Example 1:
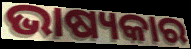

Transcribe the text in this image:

ଭାଷ୍ୟକାର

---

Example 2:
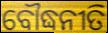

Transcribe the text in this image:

ବୌଦ୍ଧନୀତି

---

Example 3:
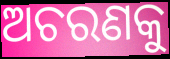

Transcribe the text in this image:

ଅଚରଣକୁ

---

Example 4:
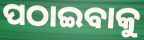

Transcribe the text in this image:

ପଠାଇବାକୁ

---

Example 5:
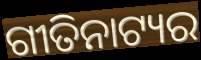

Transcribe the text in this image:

ଗୀତିନାଟ୍ୟର